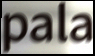
pala